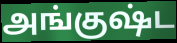
அங்குஷ்ட